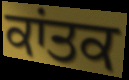
ਕਾਂਤਕ